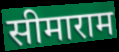
सीमाराम